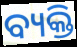
ବ୍ୟକ୍ତି